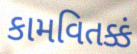
કામવિતક્કં